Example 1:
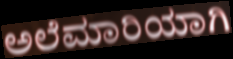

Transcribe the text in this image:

ಅಲೆಮಾರಿಯಾಗಿ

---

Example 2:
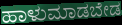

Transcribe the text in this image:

ಹಾಳುಮಾಡಬೇಡ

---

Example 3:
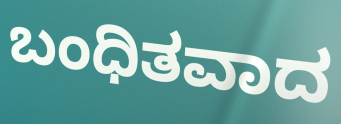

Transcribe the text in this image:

ಬಂಧಿತವಾದ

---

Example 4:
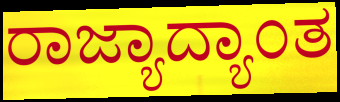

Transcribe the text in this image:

ರಾಜ್ಯಾದ್ಯಾಂತ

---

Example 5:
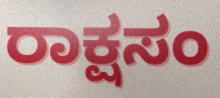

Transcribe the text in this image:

ರಾಕ್ಷಸಂ